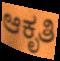
ಆಕೃತಿ